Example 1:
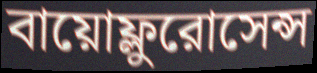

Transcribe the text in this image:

বায়োফ্লুরোসেন্স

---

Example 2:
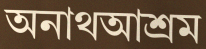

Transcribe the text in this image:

অনাথআশ্রম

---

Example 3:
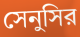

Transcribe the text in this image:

সেনুসির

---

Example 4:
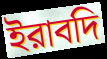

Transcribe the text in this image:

ইরাবদি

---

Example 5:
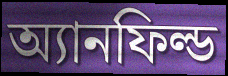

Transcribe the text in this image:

অ্যানফিল্ড